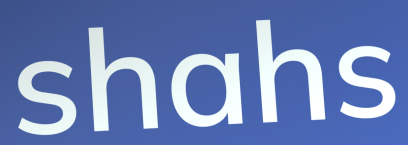
shahs